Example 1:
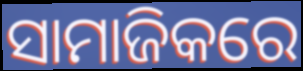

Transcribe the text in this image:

ସାମାଜିକରେ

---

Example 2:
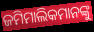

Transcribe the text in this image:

ଜମିମାଲିକମାନଙ୍କୁ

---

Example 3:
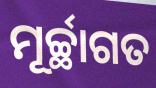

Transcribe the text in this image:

ମୂର୍ଚ୍ଛାଗତ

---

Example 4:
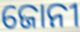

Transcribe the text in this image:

ଜୋନୀ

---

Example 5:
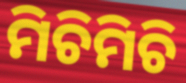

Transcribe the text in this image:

ମିଚିମିଚି